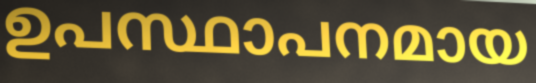
ഉപസ്ഥാപനമായ